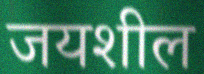
जयशील